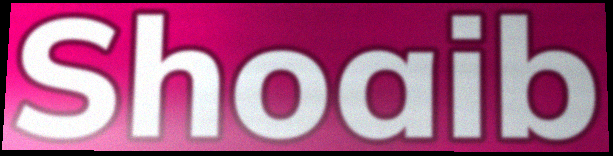
Shoaib